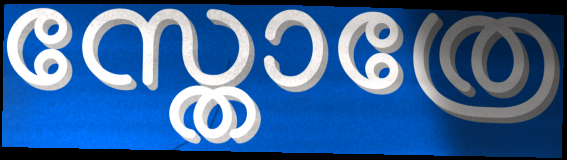
സ്തോത്രേ